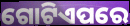
ଗୋଟିଏପରେ